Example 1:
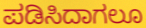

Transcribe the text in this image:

ಪಡಿಸಿದಾಗಲೂ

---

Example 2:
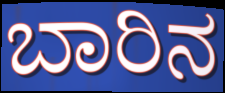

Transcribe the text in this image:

ಬಾರಿನ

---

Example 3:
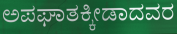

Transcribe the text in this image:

ಅಪಘಾತಕ್ಕೀಡಾದವರ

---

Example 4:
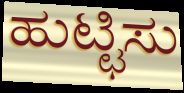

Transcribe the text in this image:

ಹುಟ್ಟಿಸು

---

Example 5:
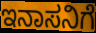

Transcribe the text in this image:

ಇನಾಸನಿಗೆ